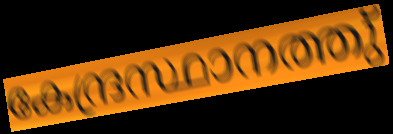
കേന്ദ്രസ്ഥാനത്തു്